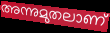
അന്നുമുതലാണ്